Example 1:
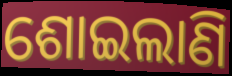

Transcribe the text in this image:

ଶୋଇଲାଣି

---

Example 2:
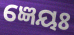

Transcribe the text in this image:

ଜ୍ଞେୟଃ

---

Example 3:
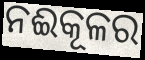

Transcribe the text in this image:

ନଈକୂଳର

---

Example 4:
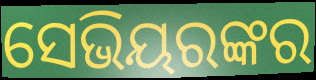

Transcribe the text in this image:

ସେଭିୟରଙ୍କର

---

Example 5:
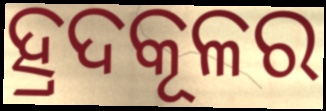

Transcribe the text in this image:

ହ୍ରଦକୂଳର